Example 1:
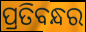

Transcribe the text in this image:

ପ୍ରତିବନ୍ଧର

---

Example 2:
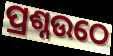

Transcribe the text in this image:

ପ୍ରଶ୍ନଉଠେ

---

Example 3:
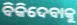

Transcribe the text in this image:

ବିକିଦେବାକୁ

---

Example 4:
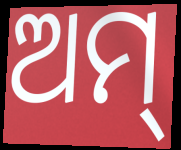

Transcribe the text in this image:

ଅମ୍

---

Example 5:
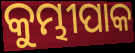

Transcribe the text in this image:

କୁମ୍ଭୀପାକ